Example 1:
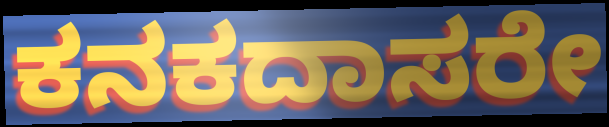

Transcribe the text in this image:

ಕನಕದಾಸರೇ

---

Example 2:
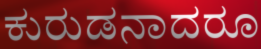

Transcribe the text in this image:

ಕುರುಡನಾದರೂ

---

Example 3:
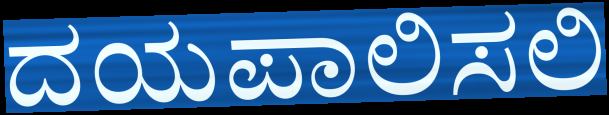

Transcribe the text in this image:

ದಯಪಾಲಿಸಲಿ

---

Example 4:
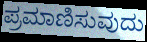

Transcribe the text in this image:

ಪ್ರಮಾಣಿಸುವುದು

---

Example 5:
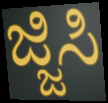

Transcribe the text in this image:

ಜ್ಜಿಸಿ